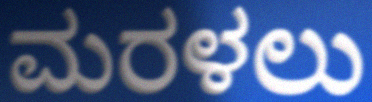
ಮರಳಲು